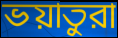
ভয়াতুরা